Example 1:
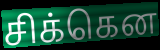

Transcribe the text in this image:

சிக்கென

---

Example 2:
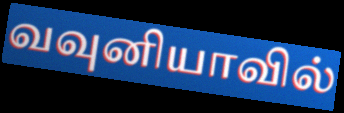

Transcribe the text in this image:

வவுனியாவில்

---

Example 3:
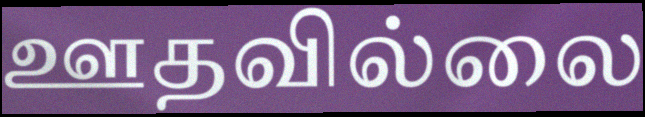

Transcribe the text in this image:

ஊதவில்லை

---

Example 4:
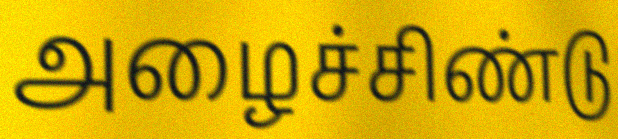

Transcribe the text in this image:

அழைச்சிண்டு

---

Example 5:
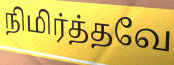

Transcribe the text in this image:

நிமிர்த்தவே